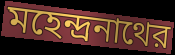
মহেন্দ্রনাথের